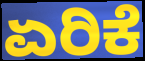
ಏರಿಕೆ